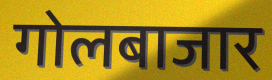
गोलबाजार